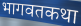
भागवतकथा